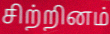
சிற்றினம்